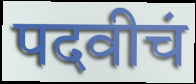
पदवीचं